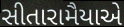
સીતારામૈયાએ